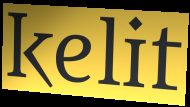
kelit